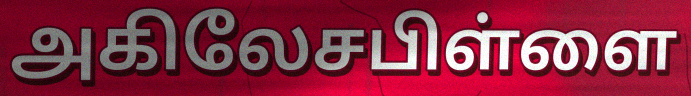
அகிலேசபிள்ளை